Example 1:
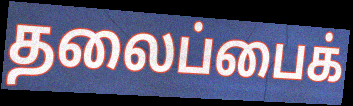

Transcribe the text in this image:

தலைப்பைக்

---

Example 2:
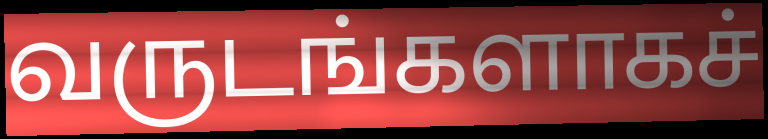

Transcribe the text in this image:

வருடங்களாகச்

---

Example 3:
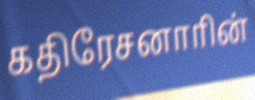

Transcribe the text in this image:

கதிரேசனாரின்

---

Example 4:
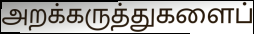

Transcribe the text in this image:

அறக்கருத்துகளைப்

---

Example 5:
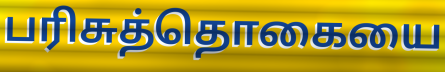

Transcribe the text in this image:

பரிசுத்தொகையை